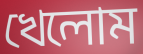
খেলোম